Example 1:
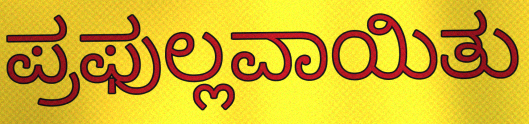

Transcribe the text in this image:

ಪ್ರಫುಲ್ಲವಾಯಿತು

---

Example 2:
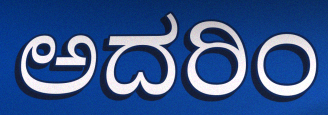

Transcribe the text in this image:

ಅದರಿಂ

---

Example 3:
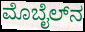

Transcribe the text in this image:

ಮೊಬೈಲ್‌ನ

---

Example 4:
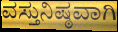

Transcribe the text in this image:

ವಸ್ತುನಿಷ್ಠವಾಗಿ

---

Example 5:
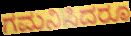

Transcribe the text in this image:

ಗಮನಿಸಿದರೂ